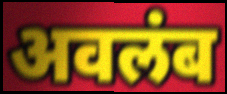
अवलंब